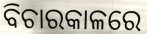
ବିଚାରକାଳରେ